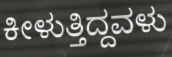
ಕೀಳುತ್ತಿದ್ದವಳು